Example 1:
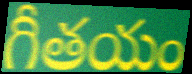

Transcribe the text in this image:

గీతయం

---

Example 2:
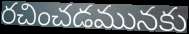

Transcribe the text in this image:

రచించడమునకు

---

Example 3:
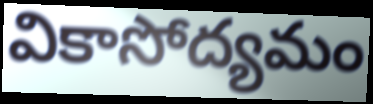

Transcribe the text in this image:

వికాసోద్యమం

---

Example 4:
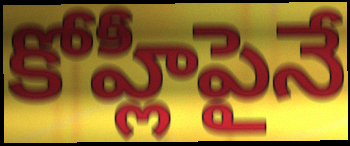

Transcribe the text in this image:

కోహ్లీపైనే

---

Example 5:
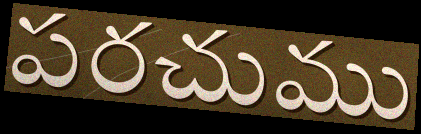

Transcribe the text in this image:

పరచుము